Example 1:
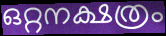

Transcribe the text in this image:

ഒറ്റനക്ഷത്രം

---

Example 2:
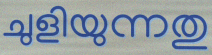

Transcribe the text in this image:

ചുളിയുന്നതു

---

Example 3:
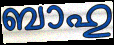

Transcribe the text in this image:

ബാഹു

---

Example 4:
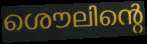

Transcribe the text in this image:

ശൌലിന്റെ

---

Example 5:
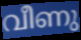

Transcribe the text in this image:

വീണു